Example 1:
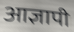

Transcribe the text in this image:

आज्ञापी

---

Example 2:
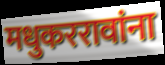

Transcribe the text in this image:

मधुकररावांना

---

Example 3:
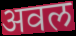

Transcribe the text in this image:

अवल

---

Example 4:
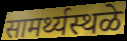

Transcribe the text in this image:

सामर्थ्यस्थळे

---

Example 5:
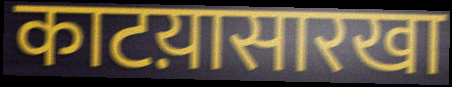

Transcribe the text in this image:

काटय़ासारखा